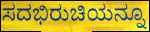
ಸದಭಿರುಚಿಯನ್ನೂ